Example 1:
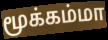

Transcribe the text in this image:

மூக்கம்மா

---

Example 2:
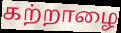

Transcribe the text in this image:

கற்றாழை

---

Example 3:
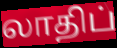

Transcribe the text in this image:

லாதிப்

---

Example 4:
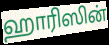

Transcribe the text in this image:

ஹாரிஸின்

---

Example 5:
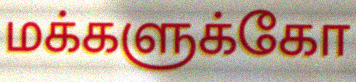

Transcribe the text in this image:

மக்களுக்கோ